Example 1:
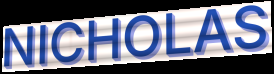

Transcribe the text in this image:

NICHOLAS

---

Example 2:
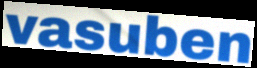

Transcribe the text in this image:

vasuben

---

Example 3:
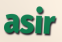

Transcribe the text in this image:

asir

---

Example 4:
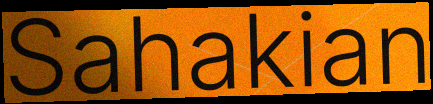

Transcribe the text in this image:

Sahakian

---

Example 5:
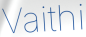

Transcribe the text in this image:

Vaithi